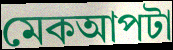
মেকআপটা